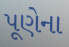
પૂણેના